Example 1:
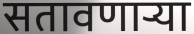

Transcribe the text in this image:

सतावणार्‍या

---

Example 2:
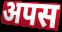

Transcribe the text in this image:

अपस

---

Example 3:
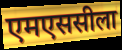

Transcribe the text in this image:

एमएससीला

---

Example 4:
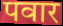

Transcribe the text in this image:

पवार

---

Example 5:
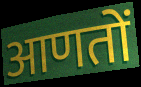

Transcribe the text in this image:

आणतों